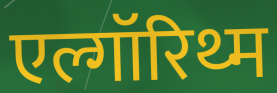
एल्गॉरिथ्म